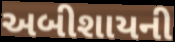
અબીશાયની